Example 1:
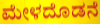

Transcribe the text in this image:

ಮೇಳದೊಡನೆ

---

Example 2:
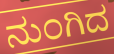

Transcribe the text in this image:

ನುಂಗಿದ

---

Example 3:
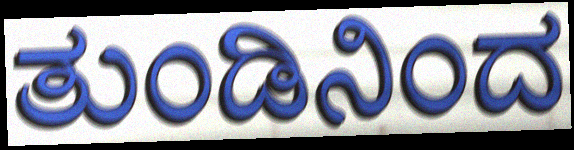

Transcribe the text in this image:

ತುಂಡಿನಿಂದ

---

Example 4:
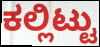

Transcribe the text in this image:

ಕಲ್ಲಿಟ್ಟು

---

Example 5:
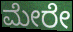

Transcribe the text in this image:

ಮೇರೇ